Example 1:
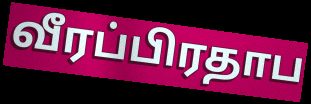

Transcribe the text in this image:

வீரப்பிரதாப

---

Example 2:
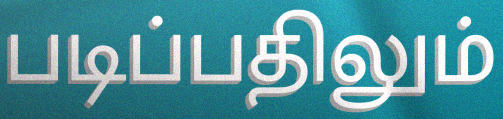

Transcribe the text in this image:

படிப்பதிலும்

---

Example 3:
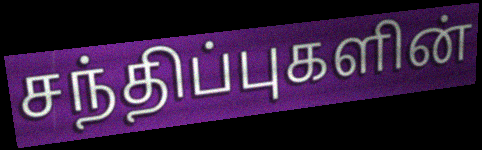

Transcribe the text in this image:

சந்திப்புகளின்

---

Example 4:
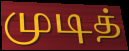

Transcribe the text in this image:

முடித்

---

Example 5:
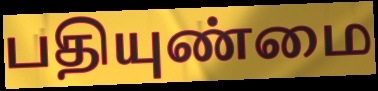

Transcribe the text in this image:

பதியுண்மை